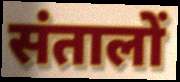
संतालों